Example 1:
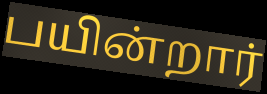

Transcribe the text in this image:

பயின்றார்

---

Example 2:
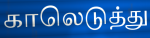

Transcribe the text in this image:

காலெடுத்து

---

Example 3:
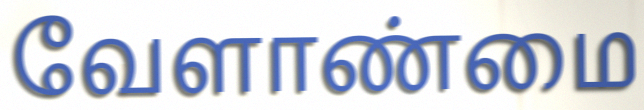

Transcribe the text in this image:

வேளாண்மை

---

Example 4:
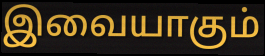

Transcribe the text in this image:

இவையாகும்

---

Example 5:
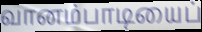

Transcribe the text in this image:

வானம்பாடியைப்